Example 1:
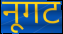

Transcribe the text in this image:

नूगट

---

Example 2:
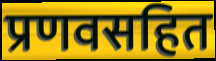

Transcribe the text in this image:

प्रणवसहित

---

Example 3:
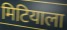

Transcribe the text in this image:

मिटियाला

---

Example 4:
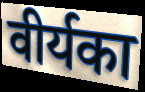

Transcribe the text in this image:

वीर्यका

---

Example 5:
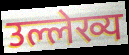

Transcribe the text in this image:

उल्लेख्य